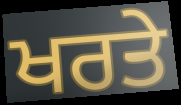
ਖਰਤੇ